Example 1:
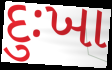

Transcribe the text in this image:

દુઃખા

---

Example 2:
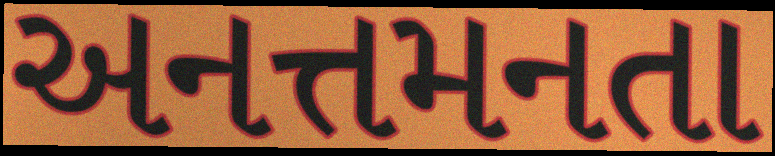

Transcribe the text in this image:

અનત્તમનતા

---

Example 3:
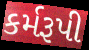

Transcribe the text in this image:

કર્મરૂપી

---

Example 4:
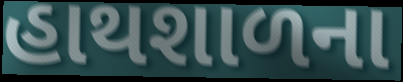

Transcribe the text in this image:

હાથશાળના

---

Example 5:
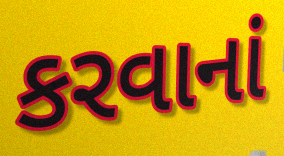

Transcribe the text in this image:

કરવાનાં